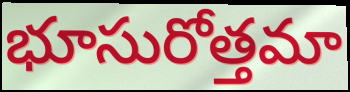
భూసురోత్తమా